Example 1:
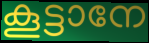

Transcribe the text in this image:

കൂട്ടാനേ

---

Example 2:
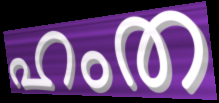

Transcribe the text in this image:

ഹംത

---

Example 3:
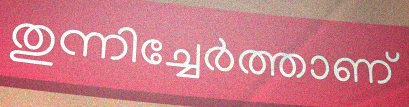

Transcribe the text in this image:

തുന്നിച്ചേർത്താണ്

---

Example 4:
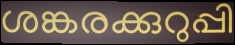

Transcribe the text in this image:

ശങ്കരക്കുറുപ്പി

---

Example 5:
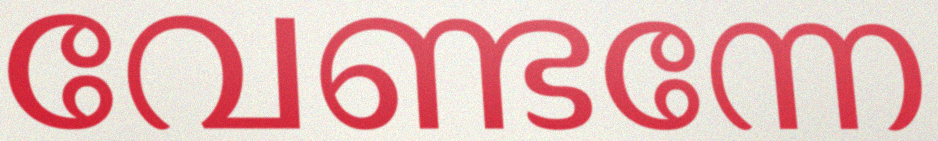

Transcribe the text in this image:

വേണ്ടന്നേ